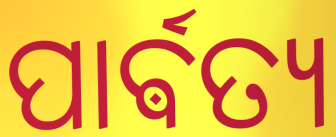
ପାର୍ଵତ୍ଯ